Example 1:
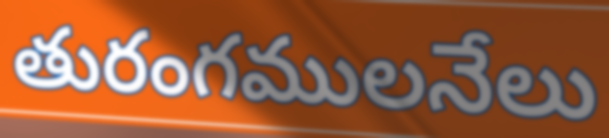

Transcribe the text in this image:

తురంగములనేలు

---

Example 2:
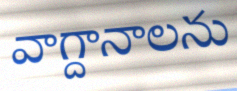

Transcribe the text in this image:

వాగ్దానాలను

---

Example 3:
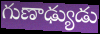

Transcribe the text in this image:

గుణాఢ్యుడు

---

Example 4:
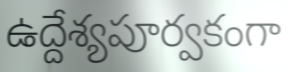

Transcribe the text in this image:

ఉద్దేశ్యపూర్వకంగా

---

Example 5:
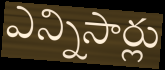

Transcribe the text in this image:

ఎన్నిసార్లు